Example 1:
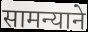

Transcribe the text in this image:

सामन्याने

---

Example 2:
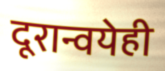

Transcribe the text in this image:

दूरान्वयेही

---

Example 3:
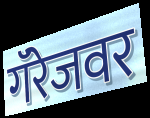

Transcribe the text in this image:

गॅरेजवर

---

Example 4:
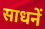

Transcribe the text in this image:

साधनें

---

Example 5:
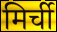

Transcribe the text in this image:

मिर्ची